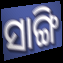
ସାଙ୍ଗି